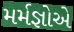
મર્મજ્ઞોએ